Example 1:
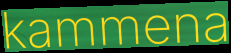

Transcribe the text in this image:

kammena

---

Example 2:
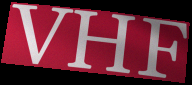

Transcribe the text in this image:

VHF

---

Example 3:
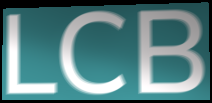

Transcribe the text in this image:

LCB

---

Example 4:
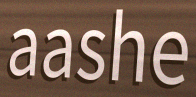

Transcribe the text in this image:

aashe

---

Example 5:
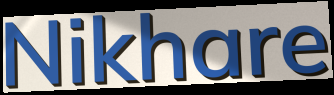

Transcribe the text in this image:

Nikhare